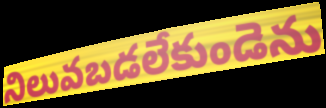
నిలువబడలేకుండెను